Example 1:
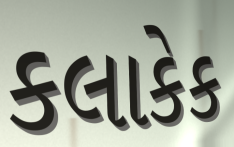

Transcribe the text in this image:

કલાકેક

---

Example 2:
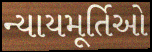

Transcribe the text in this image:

ન્યાયમૂર્તિઓ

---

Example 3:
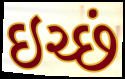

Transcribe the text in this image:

ઇચ્છં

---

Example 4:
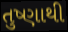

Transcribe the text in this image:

તુષ્ણાથી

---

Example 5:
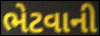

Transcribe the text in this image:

ભેટવાની